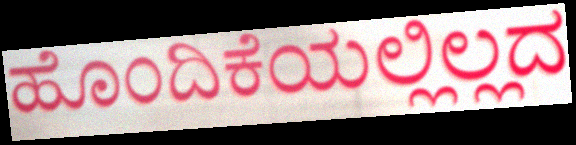
ಹೊಂದಿಕೆಯಲ್ಲಿಲ್ಲದ